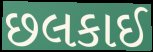
છલકાઈ